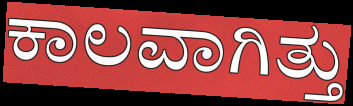
ಕಾಲವಾಗಿತ್ತು